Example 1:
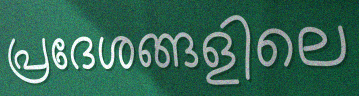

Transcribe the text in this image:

പ്രദേശങ്ങളിലെ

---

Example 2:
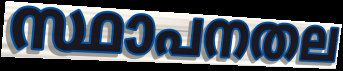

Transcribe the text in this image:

സ്ഥാപനതല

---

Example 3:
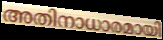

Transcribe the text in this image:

അതിനാധാരമായി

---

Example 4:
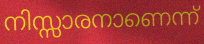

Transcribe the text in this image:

നിസ്സാരനാണെന്ന്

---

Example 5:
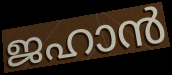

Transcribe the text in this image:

ജഹാൻ